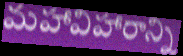
మహావిహారాన్ని